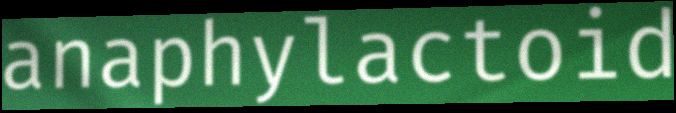
anaphylactoid